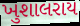
ખુશાલરાય